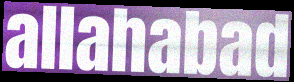
allahabad